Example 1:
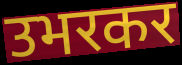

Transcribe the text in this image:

उभरकर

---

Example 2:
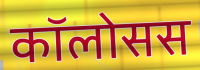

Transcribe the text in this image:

कॉलोसस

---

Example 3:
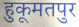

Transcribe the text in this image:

हुकूमतपुर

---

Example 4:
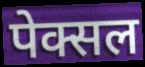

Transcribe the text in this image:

पेक्सल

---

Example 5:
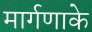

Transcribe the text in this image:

मार्गणाके